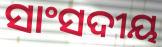
ସାଂସଦୀୟ